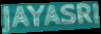
JAYASRI